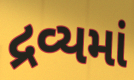
દ્રવ્યમાં